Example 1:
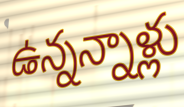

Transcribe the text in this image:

ఉన్నన్నాళ్లు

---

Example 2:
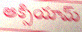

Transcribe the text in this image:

ఆక్సియామ్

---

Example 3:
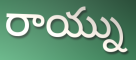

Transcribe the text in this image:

రాయ్ను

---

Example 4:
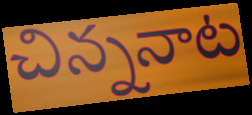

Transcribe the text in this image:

చిన్ననాట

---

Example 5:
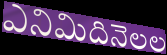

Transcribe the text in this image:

ఎనిమిదినెలల